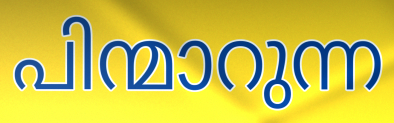
പിന്മാറുന്ന